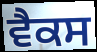
ਵੈਕਸ